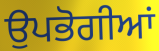
ਉਪਭੋਗੀਆਂ